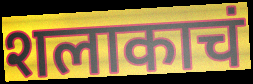
शलाकाचं